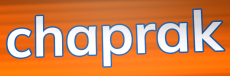
chaprak